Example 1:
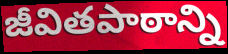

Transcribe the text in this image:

జీవితపాఠాన్ని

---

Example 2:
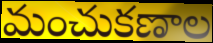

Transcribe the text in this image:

మంచుకణాల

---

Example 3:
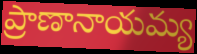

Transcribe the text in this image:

ప్రాణానాయమ్య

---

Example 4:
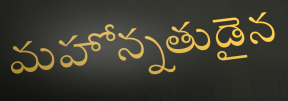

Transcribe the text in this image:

మహోన్నతుడైన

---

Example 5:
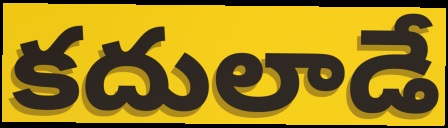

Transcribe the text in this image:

కదులాడే